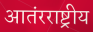
आतंरराष्ट्रीय